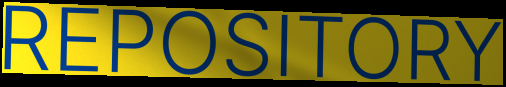
REPOSITORY